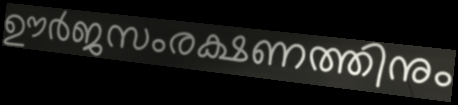
ഊർജസംരക്ഷണത്തിനും